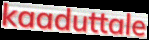
kaaduttale